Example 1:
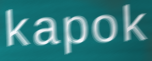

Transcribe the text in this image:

kapok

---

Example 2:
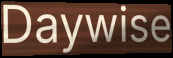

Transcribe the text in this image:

Daywise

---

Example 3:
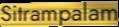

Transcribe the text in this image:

Sitrampalam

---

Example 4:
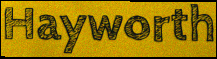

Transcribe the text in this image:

Hayworth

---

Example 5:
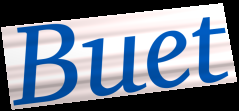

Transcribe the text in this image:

Buet